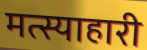
मत्स्याहारी